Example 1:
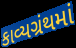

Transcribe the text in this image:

કાવ્યગ્રંથમાં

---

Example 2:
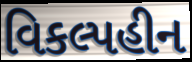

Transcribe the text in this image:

વિકલ્પહીન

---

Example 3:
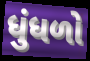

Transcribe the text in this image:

ધુંધળો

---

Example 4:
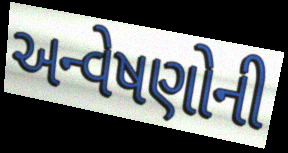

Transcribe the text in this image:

અન્વેષણોની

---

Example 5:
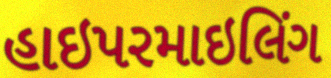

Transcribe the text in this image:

હાઇપરમાઇલિંગ